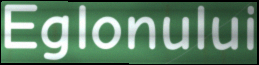
Eglonului